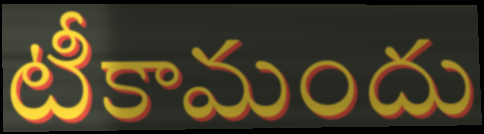
టీకామందు